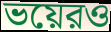
ভয়েরও